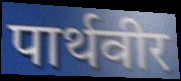
पार्थवीर